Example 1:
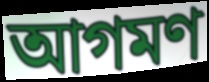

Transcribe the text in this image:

আগমণ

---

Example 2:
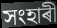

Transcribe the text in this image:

সংহাৰী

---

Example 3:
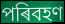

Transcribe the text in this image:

পৰিবহণ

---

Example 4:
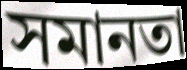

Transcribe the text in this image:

সমানতা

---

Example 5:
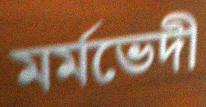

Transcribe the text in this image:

মৰ্মভেদী